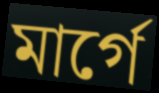
মার্গে